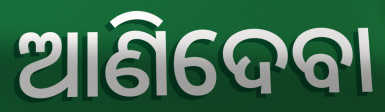
ଆଣିଦେବା